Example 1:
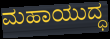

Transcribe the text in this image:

ಮಹಾಯುದ್ಧ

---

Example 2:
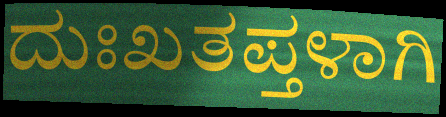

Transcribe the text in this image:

ದುಃಖತಪ್ತಳಾಗಿ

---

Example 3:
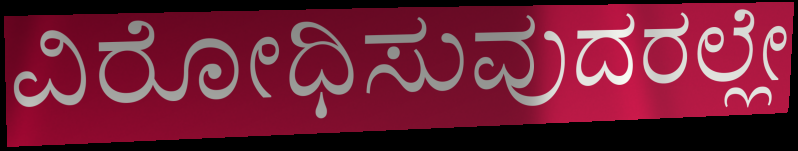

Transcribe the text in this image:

ವಿರೋಧಿಸುವುದರಲ್ಲೇ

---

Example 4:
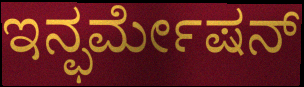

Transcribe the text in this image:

ಇನ್ಫರ್ಮೇಷನ್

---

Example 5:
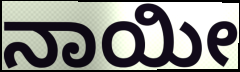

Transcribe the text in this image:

ನಾಯೀ